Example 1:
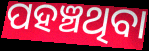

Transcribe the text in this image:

ପହଞ୍ଚଥିବା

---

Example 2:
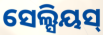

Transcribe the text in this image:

ସେଲ୍ସିୟସ୍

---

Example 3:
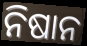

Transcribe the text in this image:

ନିଷାନ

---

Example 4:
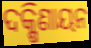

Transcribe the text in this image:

ଦକ୍ଷିଣାୟନ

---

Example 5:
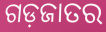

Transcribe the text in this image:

ଗଡ଼ଜାତର